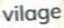
vilage